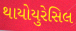
થાયોયુરેસિલ